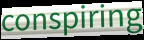
conspiring